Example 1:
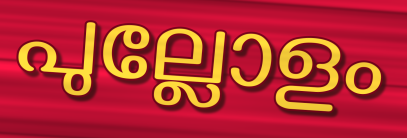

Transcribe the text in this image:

പുല്ലോളം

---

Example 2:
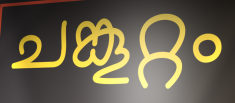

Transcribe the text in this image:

ചങ്കൂറ്റം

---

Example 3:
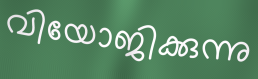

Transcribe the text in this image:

വിയോജിക്കുന്നു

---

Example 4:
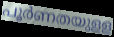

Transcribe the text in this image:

പൂർണതയുളള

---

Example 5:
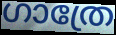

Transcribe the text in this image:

ഗാത്രേ